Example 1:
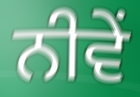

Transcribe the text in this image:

ਨੀਵੇਂ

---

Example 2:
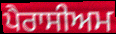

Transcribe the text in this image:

ਪੈਰਾਸੀਅਮ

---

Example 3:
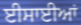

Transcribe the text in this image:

ਈਸਾਈਆਂ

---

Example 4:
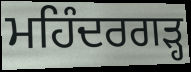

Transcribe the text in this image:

ਮਹਿੰਦਰਗੜ੍ਹ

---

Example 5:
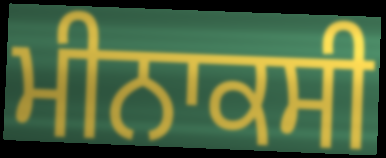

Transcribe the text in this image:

ਮੀਨਾਕਸੀ